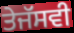
ਤੇਜੱਸਵੀ